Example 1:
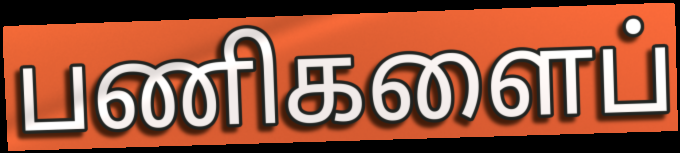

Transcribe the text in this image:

பணிகளைப்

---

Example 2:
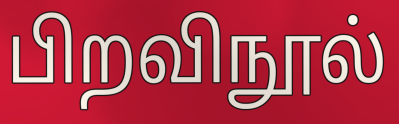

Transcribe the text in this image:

பிறவிநூல்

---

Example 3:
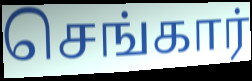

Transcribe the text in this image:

செங்கார்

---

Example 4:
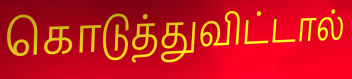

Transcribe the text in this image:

கொடுத்துவிட்டால்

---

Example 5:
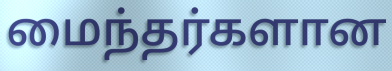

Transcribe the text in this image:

மைந்தர்களான